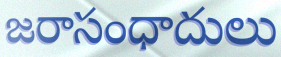
జరాసంధాదులు